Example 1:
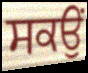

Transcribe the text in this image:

ਸਕਉਂ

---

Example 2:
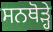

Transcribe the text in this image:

ਸਨਥੋੜ੍ਹੇ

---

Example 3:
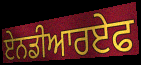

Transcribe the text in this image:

ਏਨਡੀਆਰਏਫ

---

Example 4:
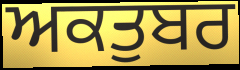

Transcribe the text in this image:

ਅਕਤੁਬਰ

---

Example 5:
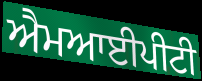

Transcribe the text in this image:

ਐਮਆਈਪੀਟੀ